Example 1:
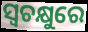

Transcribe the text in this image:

ସ୍ୱଚକ୍ଷୁରେ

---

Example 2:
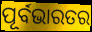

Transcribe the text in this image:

ପୂର୍ବଭାରତର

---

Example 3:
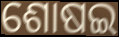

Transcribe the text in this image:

ଶୋଷଇ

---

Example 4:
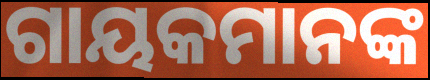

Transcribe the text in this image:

ଗାୟକମାନଙ୍କ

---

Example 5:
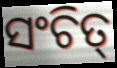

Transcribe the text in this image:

ସଂଚିତ୍